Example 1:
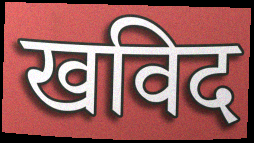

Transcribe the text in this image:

खविद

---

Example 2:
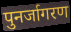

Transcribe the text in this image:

पुनर्जागरण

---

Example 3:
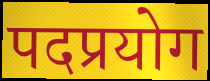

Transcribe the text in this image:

पदप्रयोग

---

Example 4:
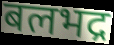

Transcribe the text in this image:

बलभद्र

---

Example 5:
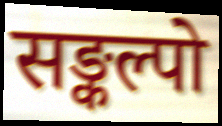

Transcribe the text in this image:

सङ्कल्पो